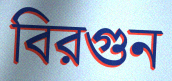
বিরগুন